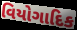
વિયોગાદિક